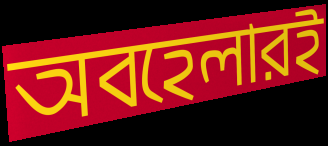
অবহেলারই